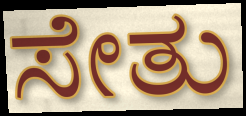
ಸೇತು